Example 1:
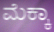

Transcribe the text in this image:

ಮೆಕ್ಕಾ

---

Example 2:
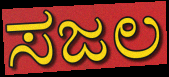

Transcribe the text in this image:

ಸಜಲ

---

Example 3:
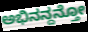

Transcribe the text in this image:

ಅಭಿನನ್ದನ್ತೋ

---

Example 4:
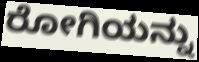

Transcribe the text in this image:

ರೋಗಿಯನ್ನು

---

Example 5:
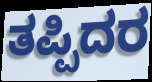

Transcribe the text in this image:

ತಪ್ಪಿದರ